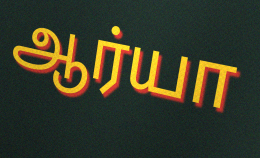
ஆர்யா